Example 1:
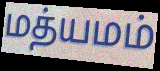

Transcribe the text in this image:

மத்யமம்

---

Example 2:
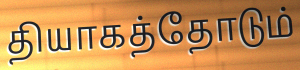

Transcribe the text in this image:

தியாகத்தோடும்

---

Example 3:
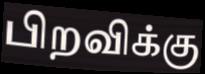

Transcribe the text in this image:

பிறவிக்கு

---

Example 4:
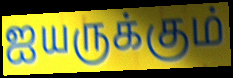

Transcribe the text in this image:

ஐயருக்கும்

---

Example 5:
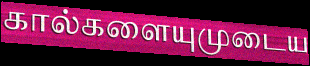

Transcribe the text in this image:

கால்களையுமுடைய